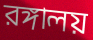
রঙ্গালয়